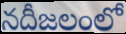
నదీజలంలో